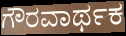
ಗೌರವಾರ್ಥಕ